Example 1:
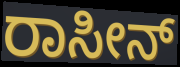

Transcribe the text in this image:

ರಾಸೀನ್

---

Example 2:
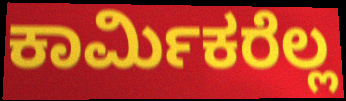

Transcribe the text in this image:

ಕಾರ್ಮಿಕರೆಲ್ಲ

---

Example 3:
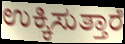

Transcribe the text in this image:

ಉಕ್ಕಿಸುತ್ತಾರೆ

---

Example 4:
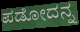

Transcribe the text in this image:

ಪಡೋದನ್ನ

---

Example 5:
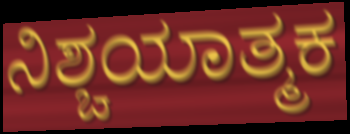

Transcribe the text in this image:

ನಿಶ್ಚಯಾತ್ಮಕ